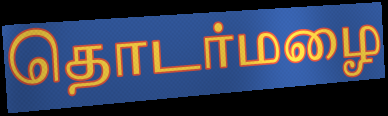
தொடர்மழை